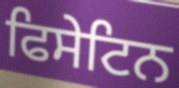
ਫਿਸੇਟਿਨ